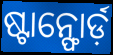
ଷ୍ଟାନ୍ଫୋର୍ଡ଼